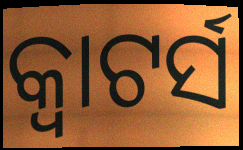
କ୍ଵାଟର୍ସ